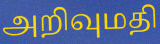
அறிவுமதி